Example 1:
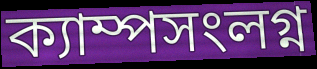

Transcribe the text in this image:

ক্যাম্পসংলগ্ন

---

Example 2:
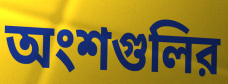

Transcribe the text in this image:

অংশগুলির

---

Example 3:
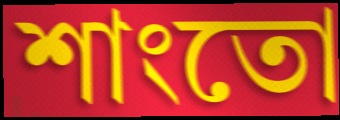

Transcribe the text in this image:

শাংতো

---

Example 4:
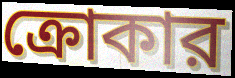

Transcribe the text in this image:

ক্রোকার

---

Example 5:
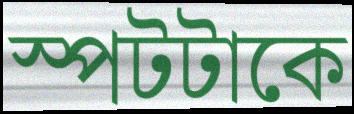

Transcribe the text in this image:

স্পটটাকে